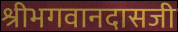
श्रीभगवानदासजी